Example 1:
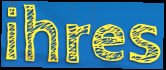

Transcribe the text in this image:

ihres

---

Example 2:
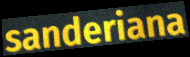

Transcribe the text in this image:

sanderiana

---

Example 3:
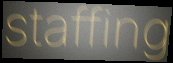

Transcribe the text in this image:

staffing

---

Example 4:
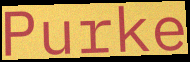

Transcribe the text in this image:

Purke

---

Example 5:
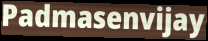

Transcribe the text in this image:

Padmasenvijay